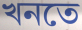
খনতে